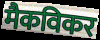
मैकविकर